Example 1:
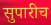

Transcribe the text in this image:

सुपारीच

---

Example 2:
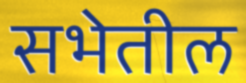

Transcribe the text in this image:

सभेतील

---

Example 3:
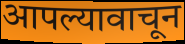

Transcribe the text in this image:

आपल्यावाचून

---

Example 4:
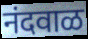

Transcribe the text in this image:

नंदवाळ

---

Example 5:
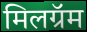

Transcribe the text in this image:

मिलग्रॅम